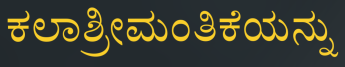
ಕಲಾಶ್ರೀಮಂತಿಕೆಯನ್ನು